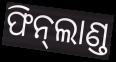
ଫିନ୍‌ଲାଣ୍ଡ